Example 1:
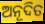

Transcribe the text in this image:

ଅନୂଦିତ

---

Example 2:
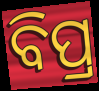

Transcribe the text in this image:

ବିପ୍ର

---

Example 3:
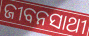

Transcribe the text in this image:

ଜୀବନସାଥୀ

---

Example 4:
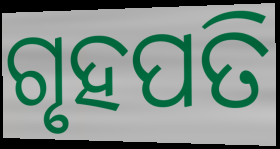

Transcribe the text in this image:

ଗୃହପତି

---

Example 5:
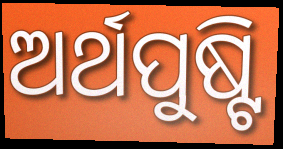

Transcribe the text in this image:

ଅର୍ଥପୁଷ୍ଟି